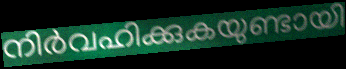
നിർവഹിക്കുകയുണ്ടായി